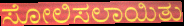
ಸೋಲಿಸಲಾಯಿತು